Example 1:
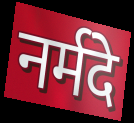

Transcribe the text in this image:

नर्मदे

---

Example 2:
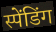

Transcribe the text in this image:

स्पेंडिंग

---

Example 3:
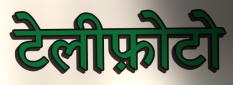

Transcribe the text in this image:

टेलीफ़ोटो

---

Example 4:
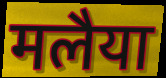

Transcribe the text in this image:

मलैया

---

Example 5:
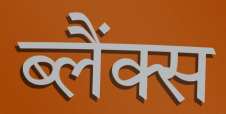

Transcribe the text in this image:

ब्लैंक्स